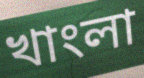
খাংলা